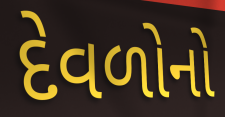
દેવળોનો